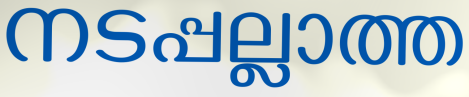
നടപ്പല്ലാത്ത